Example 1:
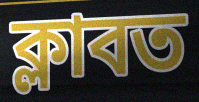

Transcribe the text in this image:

ক্লাবত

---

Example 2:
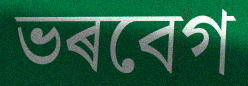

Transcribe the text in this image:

ভৰবেগ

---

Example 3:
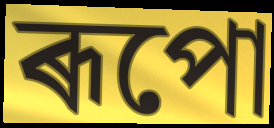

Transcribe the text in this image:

ৰূপো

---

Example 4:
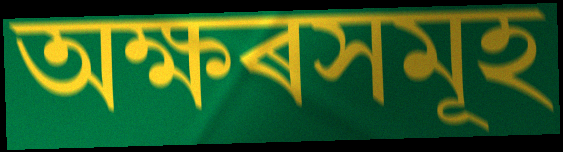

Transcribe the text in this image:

অক্ষৰসমূহ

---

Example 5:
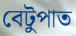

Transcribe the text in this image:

বেটুপাত